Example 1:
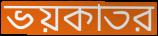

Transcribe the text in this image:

ভয়কাতর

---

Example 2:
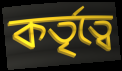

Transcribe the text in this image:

কর্তৃত্বে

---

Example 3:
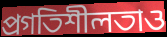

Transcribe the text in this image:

প্রগতিশীলতাও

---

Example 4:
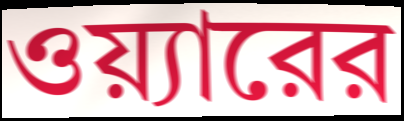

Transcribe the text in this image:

ওয়্যারের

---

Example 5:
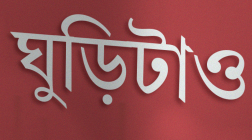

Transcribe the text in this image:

ঘুড়িটাও